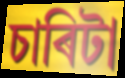
চাৰিটা